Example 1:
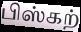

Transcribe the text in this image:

பிஸ்கற்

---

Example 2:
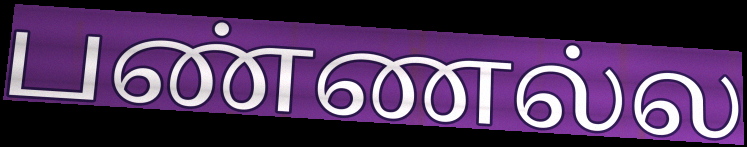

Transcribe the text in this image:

பண்ணல்ல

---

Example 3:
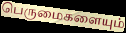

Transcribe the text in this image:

பெருமைகளையும்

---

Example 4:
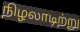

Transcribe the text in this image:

நிழலாடிற்று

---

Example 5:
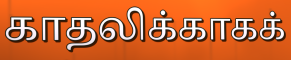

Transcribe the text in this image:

காதலிக்காகக்